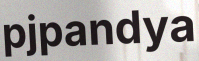
pjpandya